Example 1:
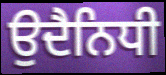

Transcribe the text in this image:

ਉਦੈਨਿਧੀ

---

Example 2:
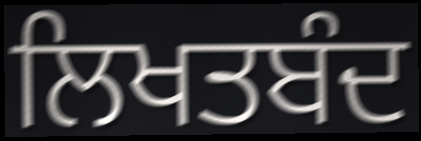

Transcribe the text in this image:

ਲਿਖਤਬੰਦ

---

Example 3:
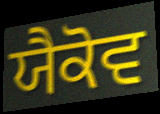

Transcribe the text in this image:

ਯੈਕੋਵ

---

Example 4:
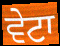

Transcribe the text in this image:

ਵੇਟਾ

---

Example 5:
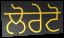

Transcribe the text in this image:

ਲੋਰੇਟੋ